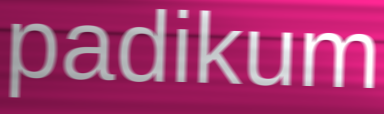
padikum